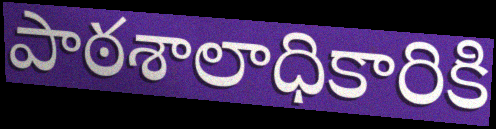
పాఠశాలాధికారికి